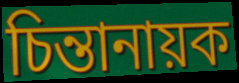
চিন্তানায়ক